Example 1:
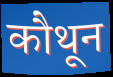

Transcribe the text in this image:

कौथून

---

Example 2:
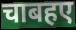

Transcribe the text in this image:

चाबहए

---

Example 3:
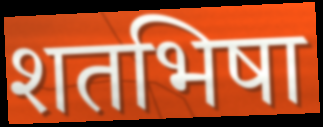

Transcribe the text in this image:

शतभिषा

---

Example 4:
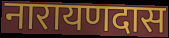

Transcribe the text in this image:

नारायणदास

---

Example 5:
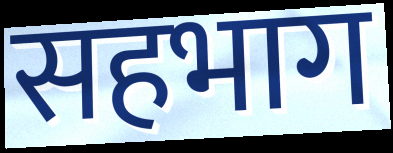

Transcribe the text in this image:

सहभाग